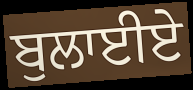
ਬੁਲਾਈਏ